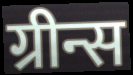
ग्रीन्स